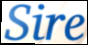
Sire